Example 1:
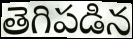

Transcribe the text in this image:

తెగిపడిన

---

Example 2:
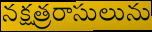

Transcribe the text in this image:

నక్షత్రరాసులును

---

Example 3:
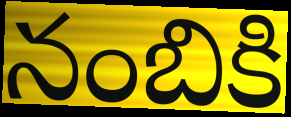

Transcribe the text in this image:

నంబికి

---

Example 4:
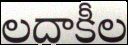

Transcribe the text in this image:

లదాకీల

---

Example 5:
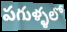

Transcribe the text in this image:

పగుళ్ళలో